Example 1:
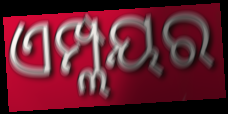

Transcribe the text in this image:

ଏମ୍ପ୍ଲୟର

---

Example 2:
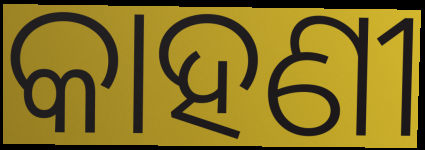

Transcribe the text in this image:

କାହଣୀ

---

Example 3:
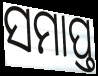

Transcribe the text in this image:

ସମାପ୍ତ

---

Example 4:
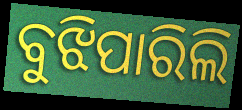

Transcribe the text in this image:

ବୁଝିପାରିଲି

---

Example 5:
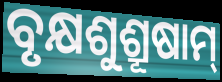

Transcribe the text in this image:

ବୃକ୍ଷଶୁଶ୍ରୂଷାମ୍